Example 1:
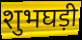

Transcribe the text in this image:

शुभघड़ी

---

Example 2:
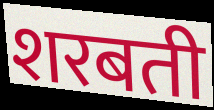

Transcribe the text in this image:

शरबती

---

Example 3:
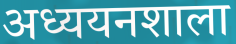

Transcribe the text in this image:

अध्ययनशाला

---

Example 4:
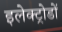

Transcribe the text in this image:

इलेक्ट्रोडों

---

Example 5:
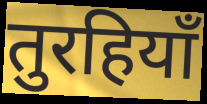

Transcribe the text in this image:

तुरहियाँ